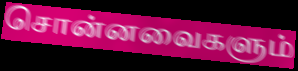
சொன்னவைகளும்